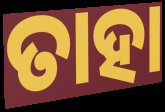
ତାହା